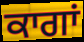
ਕਾਗਾਂ